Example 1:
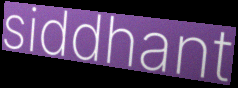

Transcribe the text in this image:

siddhant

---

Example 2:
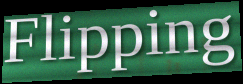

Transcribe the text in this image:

Flipping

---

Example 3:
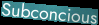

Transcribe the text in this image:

Subconcious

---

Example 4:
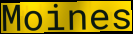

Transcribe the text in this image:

Moines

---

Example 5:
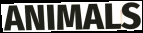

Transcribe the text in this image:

ANIMALS